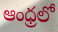
ఆంధ్రలో